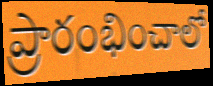
ప్రారంభించాలో